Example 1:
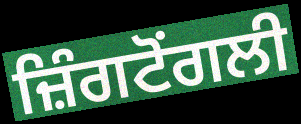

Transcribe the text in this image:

ਜ਼ਿੰਗਟੋਂਗਲੀ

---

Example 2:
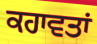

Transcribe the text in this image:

ਕਹਾਵਤਾਂ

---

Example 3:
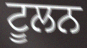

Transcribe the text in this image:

ਟੂਲਨ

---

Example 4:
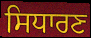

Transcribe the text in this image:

ਸਿਧਾਰਣ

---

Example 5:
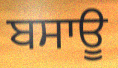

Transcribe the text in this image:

ਬਸਾਊ